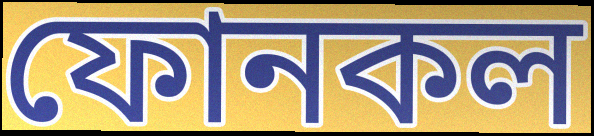
ফোনকল